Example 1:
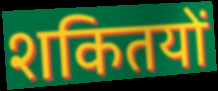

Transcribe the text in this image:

शकितयों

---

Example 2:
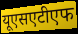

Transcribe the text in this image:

यूएसएटीएफ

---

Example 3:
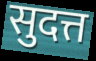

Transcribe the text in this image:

सुदत्त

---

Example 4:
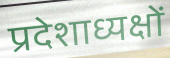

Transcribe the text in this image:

प्रदेशाध्यक्षों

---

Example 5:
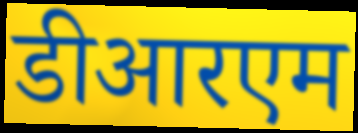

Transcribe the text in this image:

डीआरएम